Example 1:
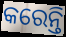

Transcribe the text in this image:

କରେନ୍ତି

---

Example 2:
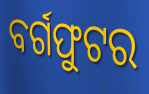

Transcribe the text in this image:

ବର୍ଗଫୁଟର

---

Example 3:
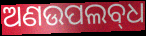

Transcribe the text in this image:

ଅଣଉପଲବ୍‌ଧ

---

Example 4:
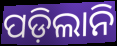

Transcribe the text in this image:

ପଡ଼ିଲାନି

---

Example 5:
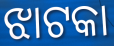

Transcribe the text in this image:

ଝାଟକା